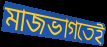
মাজভাগতেই